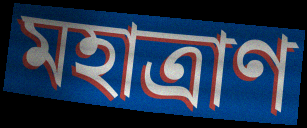
মহাত্রাণ